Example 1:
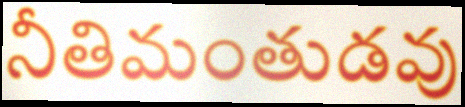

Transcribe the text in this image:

నీతిమంతుడవు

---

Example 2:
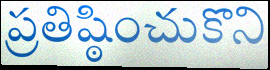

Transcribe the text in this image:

ప్రతిష్ఠించుకొని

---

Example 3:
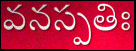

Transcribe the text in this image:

వనస్పతిః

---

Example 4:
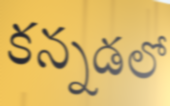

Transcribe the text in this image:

కన్నడలో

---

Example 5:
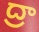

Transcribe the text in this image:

ద్రా